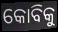
କୋବିକୁ